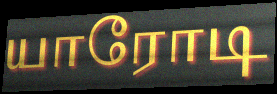
யாரோடி